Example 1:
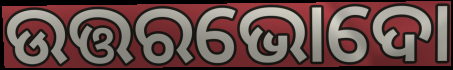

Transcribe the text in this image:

ଉତ୍ତରଭୋଦୋ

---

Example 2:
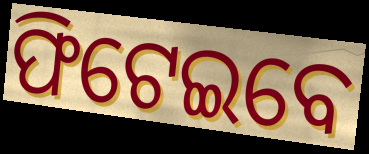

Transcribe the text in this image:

ଫିଟେଇବେ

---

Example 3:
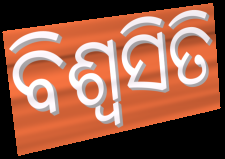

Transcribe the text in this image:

ବିଶ୍ଵସିତି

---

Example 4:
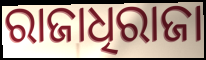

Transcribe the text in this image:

ରାଜାଧିରାଜା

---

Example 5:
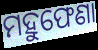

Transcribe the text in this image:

ମହୁଫେଣା